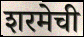
शरमेची